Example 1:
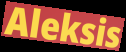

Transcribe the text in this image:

Aleksis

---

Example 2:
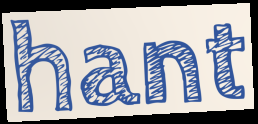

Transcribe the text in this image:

hant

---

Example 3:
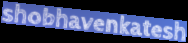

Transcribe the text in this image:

shobhavenkatesh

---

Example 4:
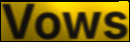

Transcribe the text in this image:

Vows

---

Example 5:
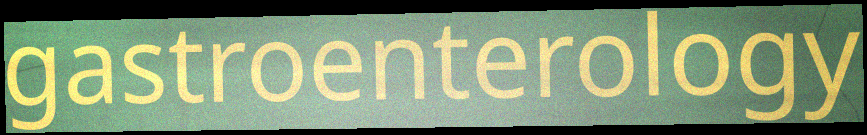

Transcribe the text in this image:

gastroenterology